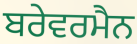
ਬਰੇਵਰਮੈਨ